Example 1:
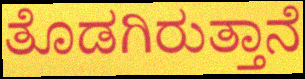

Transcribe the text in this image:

ತೊಡಗಿರುತ್ತಾನೆ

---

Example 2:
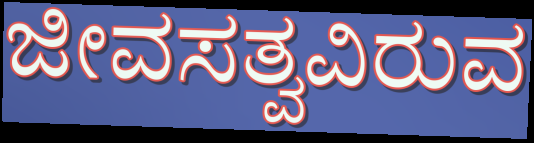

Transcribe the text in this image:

ಜೀವಸತ್ವವಿರುವ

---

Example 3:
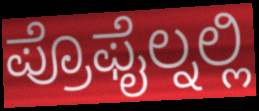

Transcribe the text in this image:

ಪ್ರೊಫೈಲ್ನಲ್ಲಿ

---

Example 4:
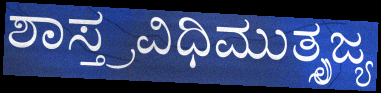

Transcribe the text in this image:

ಶಾಸ್ತ್ರವಿಧಿಮುತ್ಸೃಜ್ಯ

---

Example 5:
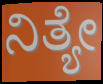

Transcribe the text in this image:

ನಿತ್ಯೇ